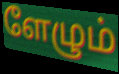
ளேழும்